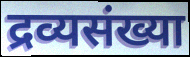
द्रव्यसंख्या